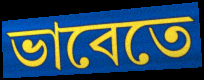
ভাবেতে